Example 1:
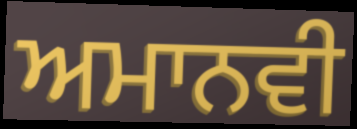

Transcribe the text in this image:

ਅਮਾਨਵੀ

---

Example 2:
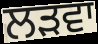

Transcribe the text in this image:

ਲੜਵਾ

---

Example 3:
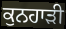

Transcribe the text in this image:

ਕੁਨਹਾੜੀ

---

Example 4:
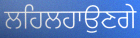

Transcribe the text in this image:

ਲਹਿਲਹਾਉਣਗੇ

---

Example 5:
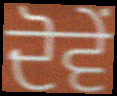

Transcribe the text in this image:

ਦੋਵੇੰ